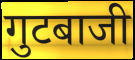
गुटबाजी